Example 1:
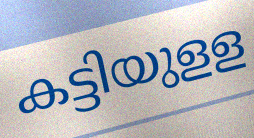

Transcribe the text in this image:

കട്ടിയുളള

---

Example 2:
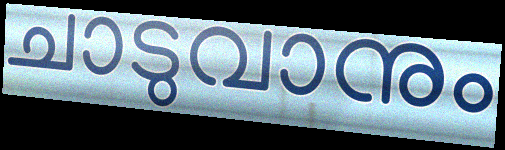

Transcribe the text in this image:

ചാടുവാനും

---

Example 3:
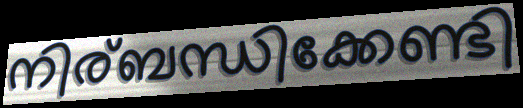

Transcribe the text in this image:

നിര്ബന്ധിക്കേണ്ടി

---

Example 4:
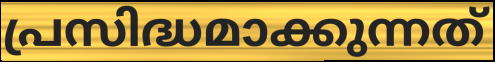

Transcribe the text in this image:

പ്രസിദ്ധമാക്കുന്നത്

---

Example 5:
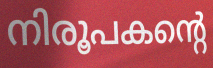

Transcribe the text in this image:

നിരൂപകന്റെ